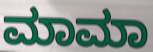
ಮಾಮಾ